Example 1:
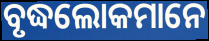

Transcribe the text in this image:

ବୃଦ୍ଧଲୋକମାନେ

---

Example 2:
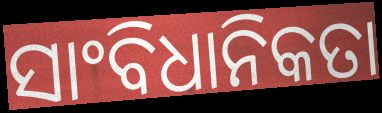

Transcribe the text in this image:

ସାଂବିଧାନିକତା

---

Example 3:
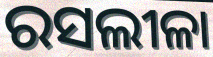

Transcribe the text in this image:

ରସଲୀଳା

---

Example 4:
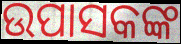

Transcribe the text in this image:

ଉପାସକଙ୍କ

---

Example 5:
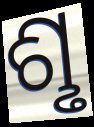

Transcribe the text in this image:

ଶୢ